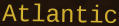
Atlantic